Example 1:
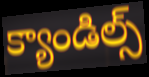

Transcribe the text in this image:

క్యాండిల్స్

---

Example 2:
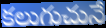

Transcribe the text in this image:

కలుగుచునే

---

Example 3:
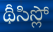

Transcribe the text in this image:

థీసిస్లో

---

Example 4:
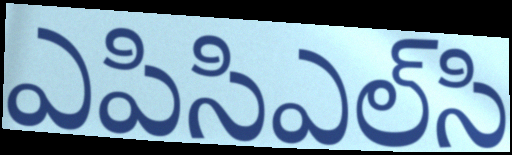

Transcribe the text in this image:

ఎపిసిఎల్‌సి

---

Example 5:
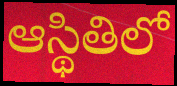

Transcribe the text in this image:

ఆస్థితిలో